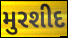
મુરશીદ